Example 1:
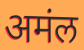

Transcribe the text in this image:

अमंल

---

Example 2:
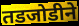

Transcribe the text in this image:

तडजोडीने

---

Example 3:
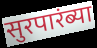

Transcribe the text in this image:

सुरपारंब्या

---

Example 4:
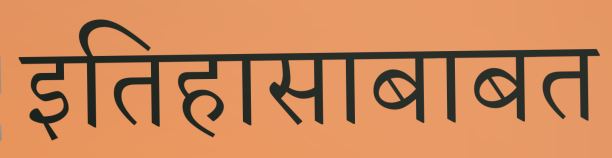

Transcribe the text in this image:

इतिहासाबाबत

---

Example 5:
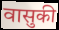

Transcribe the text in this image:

वासुकी